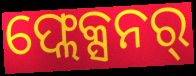
ଫ୍ଲେକ୍ସନର୍